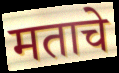
मताचे